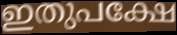
ഇതുപക്ഷേ